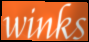
winks